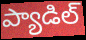
ప్యాడిల్